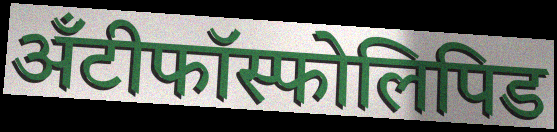
अँटीफॉस्फोलिपिड